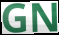
GN